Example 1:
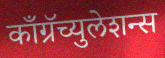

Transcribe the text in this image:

काँग्रॅच्युलेशन्स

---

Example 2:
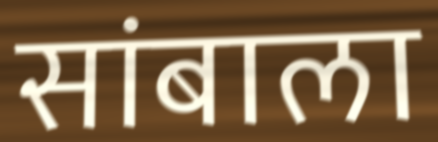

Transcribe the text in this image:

सांबाला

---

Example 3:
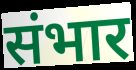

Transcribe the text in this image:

संभार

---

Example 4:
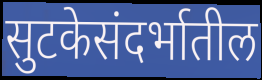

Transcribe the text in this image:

सुटकेसंदर्भातील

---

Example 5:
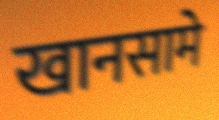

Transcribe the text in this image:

खानसामे